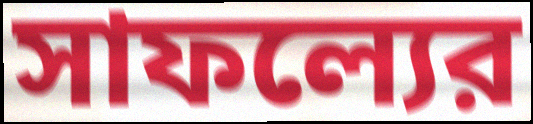
সাফল্যের